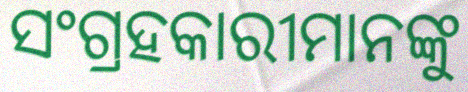
ସଂଗ୍ରହକାରୀମାନଙ୍କୁ